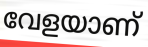
വേളയാണ്